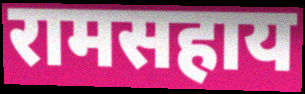
रामसहाय